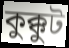
কুক্কুট